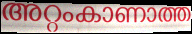
അറ്റംകാണാത്ത